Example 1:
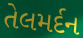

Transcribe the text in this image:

તેલમર્દન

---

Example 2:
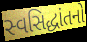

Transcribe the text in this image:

સ્વસિદ્ધાંતનો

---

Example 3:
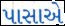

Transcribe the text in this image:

પાસાએ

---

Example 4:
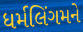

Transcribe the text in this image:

ધર્મલિંગમને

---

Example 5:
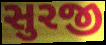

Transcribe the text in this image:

સુરજી